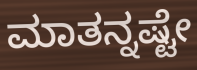
ಮಾತನ್ನಷ್ಟೇ